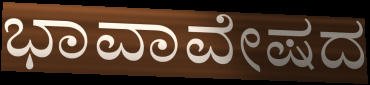
ಭಾವಾವೇಷದ